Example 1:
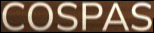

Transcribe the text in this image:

COSPAS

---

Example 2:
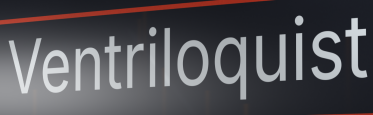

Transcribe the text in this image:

Ventriloquist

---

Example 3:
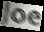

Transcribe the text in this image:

Joe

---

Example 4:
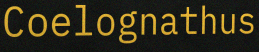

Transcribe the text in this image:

Coelognathus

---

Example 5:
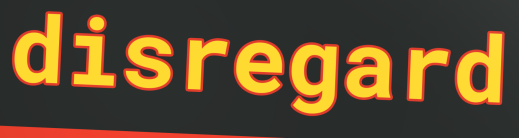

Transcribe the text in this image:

disregard